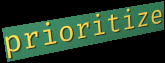
prioritize